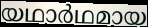
യഥാർഥമായ